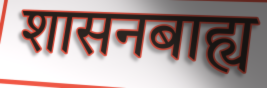
शासनबाह्य